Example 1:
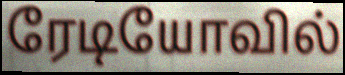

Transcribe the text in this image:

ரேடியோவில்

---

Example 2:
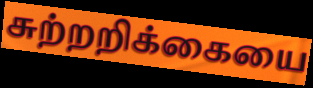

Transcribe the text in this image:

சுற்றறிக்கையை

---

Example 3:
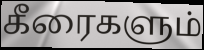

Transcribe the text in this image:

கீரைகளும்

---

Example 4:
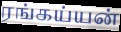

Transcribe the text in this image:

ரங்கய்யன்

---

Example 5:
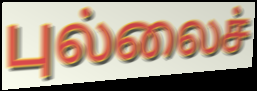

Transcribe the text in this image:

புல்லைச்